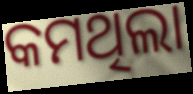
କମଥିଲା